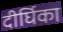
दीर्घिका